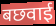
बछवाई